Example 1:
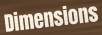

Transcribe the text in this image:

Dimensions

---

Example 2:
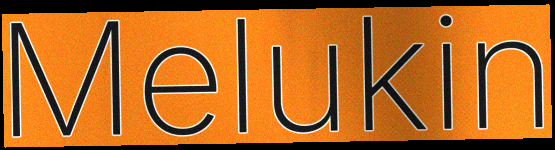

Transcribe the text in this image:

Melukin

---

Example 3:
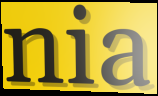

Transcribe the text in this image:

nia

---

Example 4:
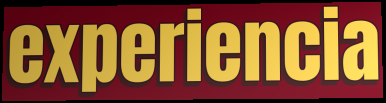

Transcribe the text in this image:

experiencia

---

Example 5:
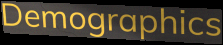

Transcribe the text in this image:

Demographics